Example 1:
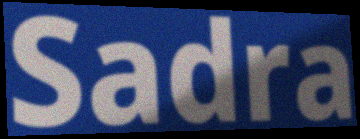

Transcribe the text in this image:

Sadra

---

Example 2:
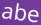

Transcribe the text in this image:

abe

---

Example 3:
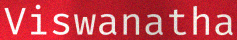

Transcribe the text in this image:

Viswanatha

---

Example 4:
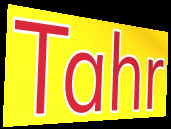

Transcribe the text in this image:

Tahr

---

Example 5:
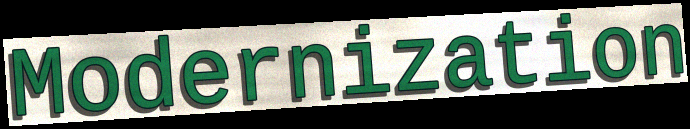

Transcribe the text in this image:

Modernization